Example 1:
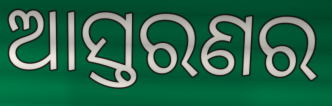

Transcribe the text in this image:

ଆସ୍ତରଣର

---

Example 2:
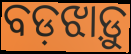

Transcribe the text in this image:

ବଡ଼ଝାଡ଼ୁ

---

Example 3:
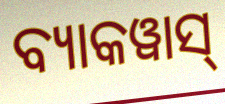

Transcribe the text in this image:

ବ୍ୟାକୱାସ୍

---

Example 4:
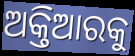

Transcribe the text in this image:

ଅକ୍ତିଆରକୁ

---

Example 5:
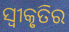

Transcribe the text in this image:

ସ୍ଵୀକୃତିର